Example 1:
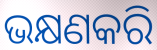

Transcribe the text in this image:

ଭକ୍ଷଣକରି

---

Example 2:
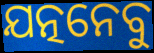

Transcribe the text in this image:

ଯତ୍ନନେବୁ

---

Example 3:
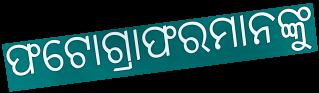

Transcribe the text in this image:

ଫଟୋଗ୍ରାଫରମାନଙ୍କୁ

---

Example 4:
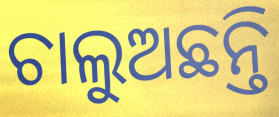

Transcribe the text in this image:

ଚାଲୁଅଛନ୍ତି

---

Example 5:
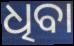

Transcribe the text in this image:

ଧିବା